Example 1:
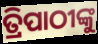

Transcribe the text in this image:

ତ୍ରିପାଠୀଙ୍କୁ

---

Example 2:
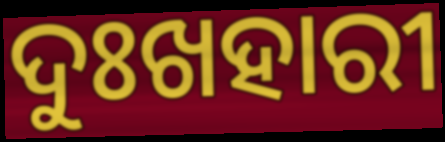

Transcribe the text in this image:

ଦୁଃଖହାରୀ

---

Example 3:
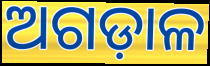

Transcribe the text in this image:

ଅଗଡ଼ାଳ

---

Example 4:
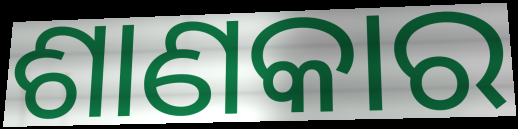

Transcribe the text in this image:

ଶାଣକାର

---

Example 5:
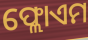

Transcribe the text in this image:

ଫ୍ଲୋଏମ